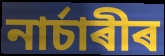
নাৰ্চাৰীৰ